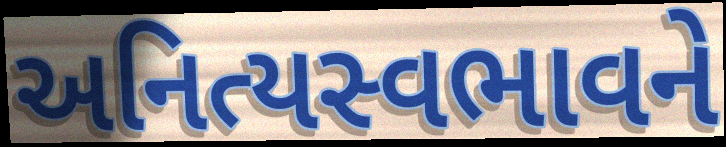
અનિત્યસ્વભાવને